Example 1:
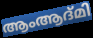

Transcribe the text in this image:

ആംആദ്മി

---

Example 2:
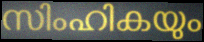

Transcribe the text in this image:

സിംഹികയും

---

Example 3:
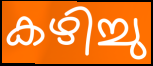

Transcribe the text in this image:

കഴിച്ചു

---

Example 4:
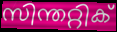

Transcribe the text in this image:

സിന്തറ്റിക്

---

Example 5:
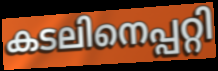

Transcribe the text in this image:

കടലിനെപ്പറ്റി